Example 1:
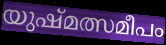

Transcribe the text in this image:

യുഷ്മത്സമീപം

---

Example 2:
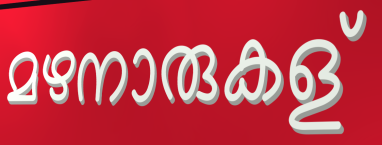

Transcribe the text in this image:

മഴനാരുകള്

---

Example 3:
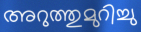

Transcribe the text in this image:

അറുത്തുമുറിച്ചു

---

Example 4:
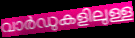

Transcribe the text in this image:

വാർഡുകളിലുള്ള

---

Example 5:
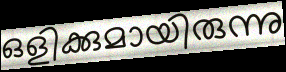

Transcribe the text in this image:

ഒളിക്കുമായിരുന്നു